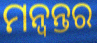
ମନ୍ବନ୍ତର